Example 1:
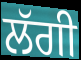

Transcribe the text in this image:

ਲੱਗੀ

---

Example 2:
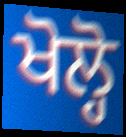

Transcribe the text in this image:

ਖੋਲ੍ਹੋ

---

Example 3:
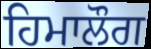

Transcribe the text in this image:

ਹਿਮਾਲੌਗ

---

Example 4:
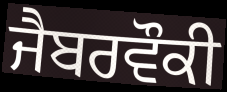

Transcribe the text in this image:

ਜੈਬਰਵੌਕੀ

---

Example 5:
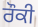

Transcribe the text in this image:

ਰੌਕੀ